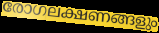
രോഗലക്ഷണങ്ങളും